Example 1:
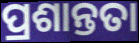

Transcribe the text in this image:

ପ୍ରଶାନ୍ତତା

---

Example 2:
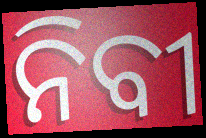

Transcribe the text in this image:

ନିବୀ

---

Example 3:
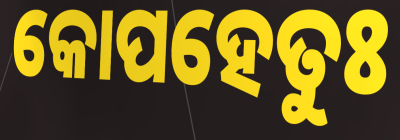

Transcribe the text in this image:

କୋପହେତୁଃ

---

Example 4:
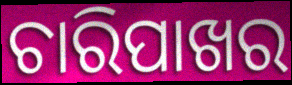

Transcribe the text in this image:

ଚାରିପାଖର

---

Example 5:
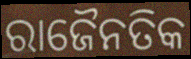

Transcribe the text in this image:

ରାଜୈନତିକ